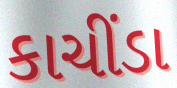
કાચીંડા